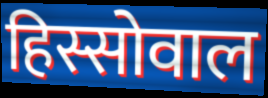
हिस्सोवाल